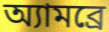
অ্যামব্রে